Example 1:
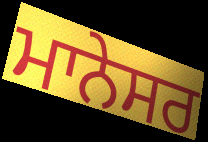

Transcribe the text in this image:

ਮਾਨੇਸਰ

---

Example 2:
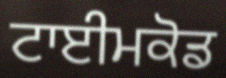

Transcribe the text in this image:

ਟਾਈਮਕੋਡ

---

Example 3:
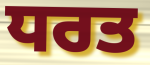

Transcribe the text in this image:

ਧਰਤ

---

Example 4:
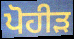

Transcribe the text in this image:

ਪੋਹੀੜ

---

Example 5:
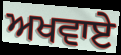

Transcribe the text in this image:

ਅਖਵਾਏ